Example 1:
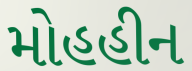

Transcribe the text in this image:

મોહહીન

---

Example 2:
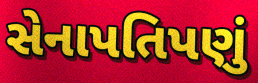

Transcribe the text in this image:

સેનાપતિપણું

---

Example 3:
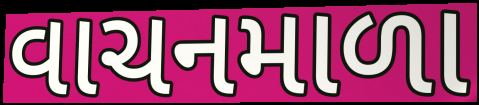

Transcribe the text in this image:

વાચનમાળા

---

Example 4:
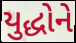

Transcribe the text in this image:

યુદ્ધોને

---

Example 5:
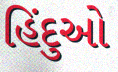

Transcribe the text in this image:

હિંદુઓ